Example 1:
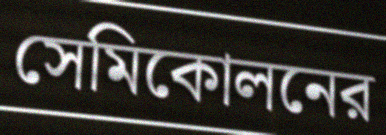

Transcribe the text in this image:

সেমিকোলনের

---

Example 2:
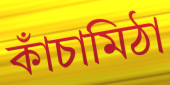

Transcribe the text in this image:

কাঁচামিঠা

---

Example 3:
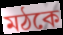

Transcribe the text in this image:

মঠকে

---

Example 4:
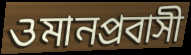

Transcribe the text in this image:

ওমানপ্রবাসী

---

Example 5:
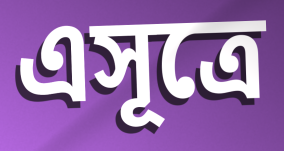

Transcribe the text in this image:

এসূত্রে